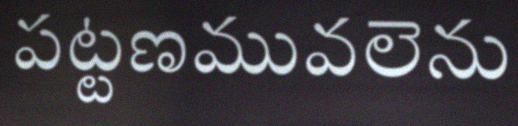
పట్టణమువలెను